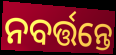
ନବର୍ତ୍ତନ୍ତେ